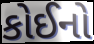
કોઈનો